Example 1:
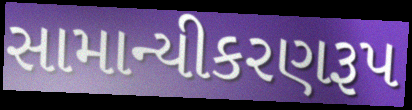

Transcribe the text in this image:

સામાન્યીકરણરૂપ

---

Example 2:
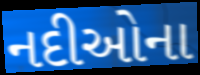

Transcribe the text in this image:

નદીઓના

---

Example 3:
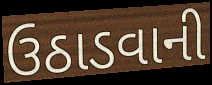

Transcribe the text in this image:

ઉઠાડવાની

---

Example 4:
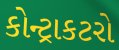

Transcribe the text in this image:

કોન્ટ્રાકટરો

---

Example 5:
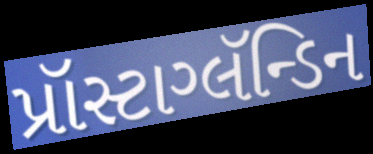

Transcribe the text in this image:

પ્રૉસ્ટાગ્લૅન્ડિન